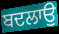
ਬਦਲਾਉ